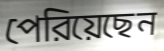
পেরিয়েছেন